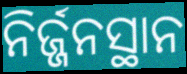
ନିର୍ଜ୍ଜନସ୍ଥାନ